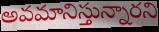
అవమానిస్తున్నారని